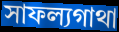
সাফল্যগাথা